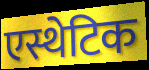
एस्थेटिक